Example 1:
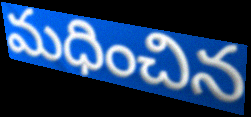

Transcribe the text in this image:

మధించిన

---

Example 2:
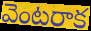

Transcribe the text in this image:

వెంటరాక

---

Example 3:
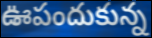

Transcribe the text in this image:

ఊపందుకున్న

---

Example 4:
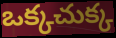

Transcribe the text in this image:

ఒక్కచుక్క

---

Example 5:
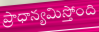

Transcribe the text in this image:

ప్రాధాన్యమిస్తోంది